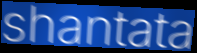
shantata